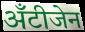
अँटीजेन